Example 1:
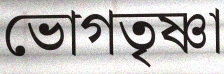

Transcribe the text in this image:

ভোগতৃষ্ণা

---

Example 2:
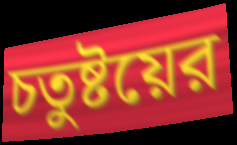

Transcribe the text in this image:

চতুষ্টয়ের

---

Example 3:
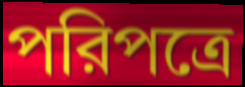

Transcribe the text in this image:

পরিপত্রে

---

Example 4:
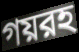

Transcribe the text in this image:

গয়রহ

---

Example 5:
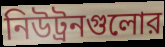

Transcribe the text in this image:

নিউট্রনগুলোর